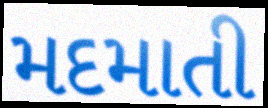
મદમાતી